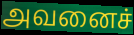
அவனைச்